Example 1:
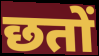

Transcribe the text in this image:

छतों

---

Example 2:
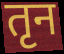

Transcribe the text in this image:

तृन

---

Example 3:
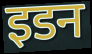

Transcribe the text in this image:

इडन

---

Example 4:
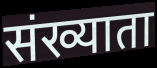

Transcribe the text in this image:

संख्याता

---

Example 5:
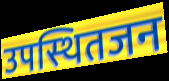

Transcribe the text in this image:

उपस्थितजन